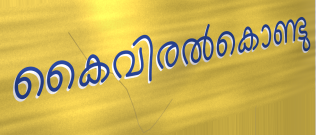
കൈവിരൽകൊണ്ടു